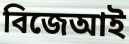
বিজেআই